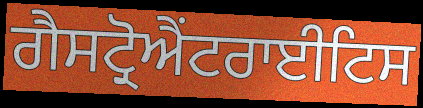
ਗੈਸਟ੍ਰੋਐਂਟਰਾਈਟਿਸ